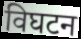
विघटन